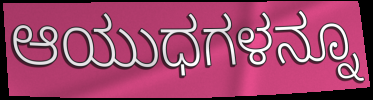
ಆಯುಧಗಳನ್ನೂ